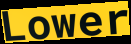
Lower